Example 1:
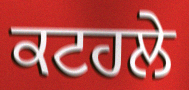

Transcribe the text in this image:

ਕਟਹਲੇ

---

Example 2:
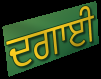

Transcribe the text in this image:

ਦਗਾਈ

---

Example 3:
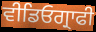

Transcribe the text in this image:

ਵੀਡਿਓਗ੍ਰਾਫੀ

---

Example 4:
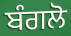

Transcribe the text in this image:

ਬੰਗਲੋ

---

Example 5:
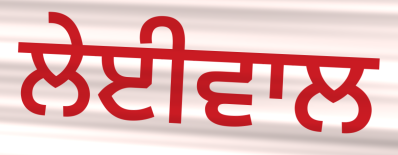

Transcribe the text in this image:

ਲੇਈਵਾਲ